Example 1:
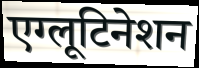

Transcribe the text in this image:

एग्लूटिनेशन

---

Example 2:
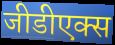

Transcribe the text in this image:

जीडीएक्स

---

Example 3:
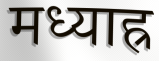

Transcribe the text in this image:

मध्याह्र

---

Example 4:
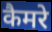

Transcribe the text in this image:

कैमरे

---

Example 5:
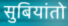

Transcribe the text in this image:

सुबियांतो